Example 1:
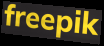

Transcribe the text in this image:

freepik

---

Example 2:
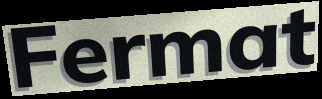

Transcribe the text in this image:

Fermat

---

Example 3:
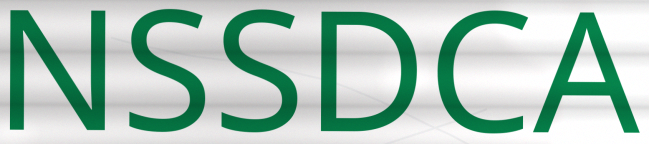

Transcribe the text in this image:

NSSDCA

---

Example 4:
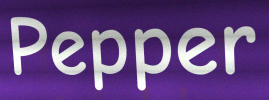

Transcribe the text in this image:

Pepper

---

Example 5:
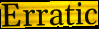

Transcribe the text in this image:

Erratic